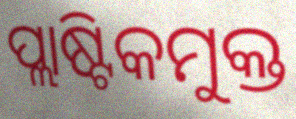
ପ୍ଲାଷ୍ଟିକମୁକ୍ତ